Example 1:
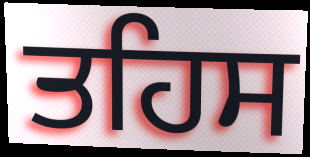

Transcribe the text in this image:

ਤਹਿਸ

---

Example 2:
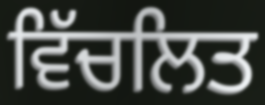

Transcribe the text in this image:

ਵਿੱਚਲਿਤ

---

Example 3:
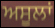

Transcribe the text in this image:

ਅਸੂਲਾਂ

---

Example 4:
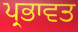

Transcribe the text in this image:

ਪ੍ਰਭਾਵਤ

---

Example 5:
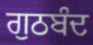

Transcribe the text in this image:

ਗੁਠਬੰਦ